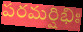
పరమర్షిభిః